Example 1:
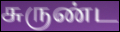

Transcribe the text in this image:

சுருண்ட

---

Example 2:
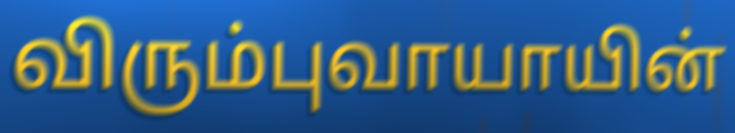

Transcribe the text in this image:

விரும்புவாயாயின்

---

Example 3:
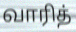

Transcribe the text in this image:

வாரித்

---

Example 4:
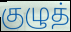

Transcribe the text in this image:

குழுத்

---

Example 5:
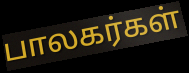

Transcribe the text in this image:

பாலகர்கள்